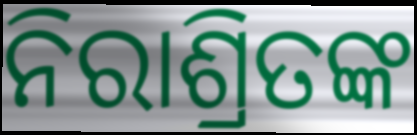
ନିରାଶ୍ରିତଙ୍କ